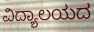
ವಿದ್ಯಾಲಯದ